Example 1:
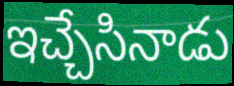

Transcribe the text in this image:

ఇచ్చేసినాడు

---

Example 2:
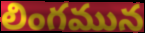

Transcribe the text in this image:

లింగమున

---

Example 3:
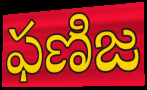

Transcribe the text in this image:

ఫణిజ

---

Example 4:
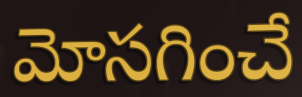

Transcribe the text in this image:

మోసగించే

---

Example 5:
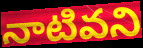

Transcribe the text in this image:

నాటివని